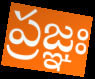
ప్రజ్ఞః